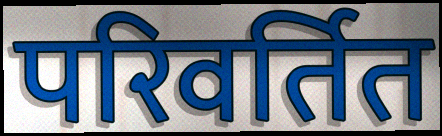
परिवर्तित